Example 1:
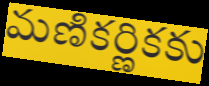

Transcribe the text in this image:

మణికర్ణికకు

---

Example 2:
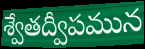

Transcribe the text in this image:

శ్వేతద్వీపమున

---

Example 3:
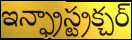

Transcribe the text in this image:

ఇన్ఫ్రాస్ట్రక్చర్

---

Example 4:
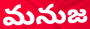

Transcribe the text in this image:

మనుజ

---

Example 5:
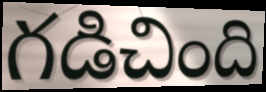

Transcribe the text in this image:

గడిచింది